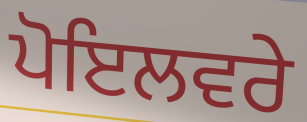
ਪੋਇਲਵਰੇ